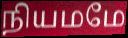
நியமமே